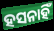
ହସନାହିଁ